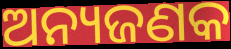
ଅନ୍ୟଜଣକ